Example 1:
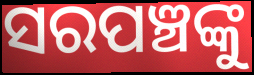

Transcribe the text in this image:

ସରପଞ୍ଚଙ୍କୁ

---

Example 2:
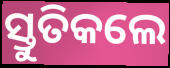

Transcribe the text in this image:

ସ୍ତୁତିକଲେ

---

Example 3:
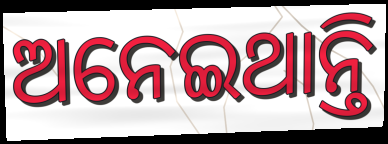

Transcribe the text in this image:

ଅନେଇଥାନ୍ତି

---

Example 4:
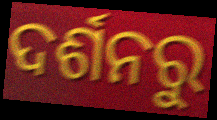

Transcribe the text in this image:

ଦର୍ଶନରୁ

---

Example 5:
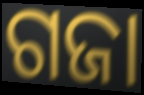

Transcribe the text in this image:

ଗଜା